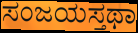
ಸಂಜಯಸ್ತಥಾ